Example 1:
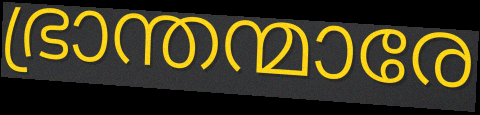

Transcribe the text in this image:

ഭ്രാന്തന്മാരേ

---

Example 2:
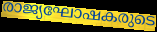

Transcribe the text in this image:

രാജ്യഘോഷകരുടെ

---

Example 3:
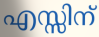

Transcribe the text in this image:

എസ്സിന്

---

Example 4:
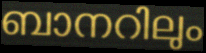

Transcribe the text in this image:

ബാനറിലും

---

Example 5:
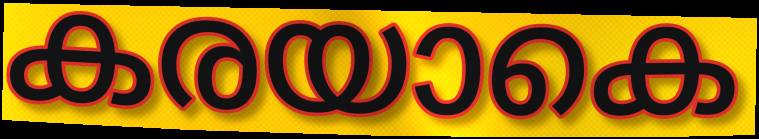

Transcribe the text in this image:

കരയാകെ